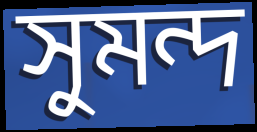
সুমন্দ